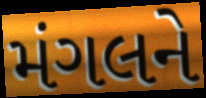
મંગલને